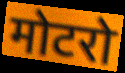
मोटरो